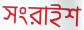
সংরাইশ